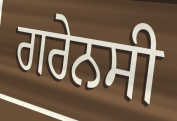
ਗਰੇਨਸੀ